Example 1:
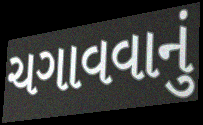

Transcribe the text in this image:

ચગાવવાનું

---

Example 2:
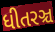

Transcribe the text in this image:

ધીતરઞ્ચ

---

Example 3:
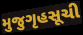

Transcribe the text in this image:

મુજુગૃહસૂચી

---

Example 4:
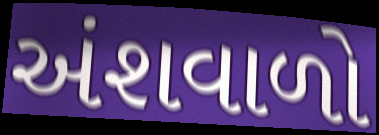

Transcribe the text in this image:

અંશવાળો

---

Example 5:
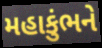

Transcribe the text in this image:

મહાકુંભને